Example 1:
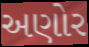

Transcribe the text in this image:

અણોર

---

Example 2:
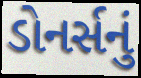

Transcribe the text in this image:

ડોનર્સનું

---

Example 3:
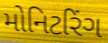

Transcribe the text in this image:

મોનિટરિંગ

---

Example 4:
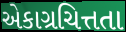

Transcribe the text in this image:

એકાગ્રચિત્તતા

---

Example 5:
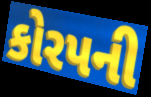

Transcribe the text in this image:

કોરપની